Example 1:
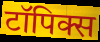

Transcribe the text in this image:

टॉपिक्स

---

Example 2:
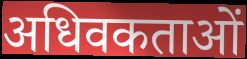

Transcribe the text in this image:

अधिवकताओं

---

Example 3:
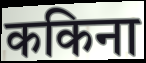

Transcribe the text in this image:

ककिना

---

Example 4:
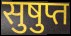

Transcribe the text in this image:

सुषुप्त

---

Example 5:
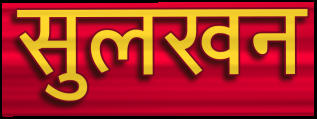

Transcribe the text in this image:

सुलखन